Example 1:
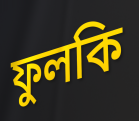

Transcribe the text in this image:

ফুলকি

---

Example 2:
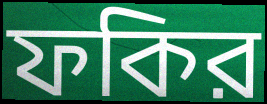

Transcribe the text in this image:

ফকির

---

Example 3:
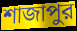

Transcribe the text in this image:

শাজাপুর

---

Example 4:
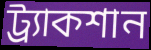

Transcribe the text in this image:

ট্র্যাকশান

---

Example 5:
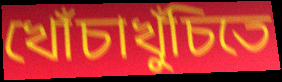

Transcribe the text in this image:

খোঁচাখুঁচিতে